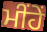
ਮੀਂਹੇਂ